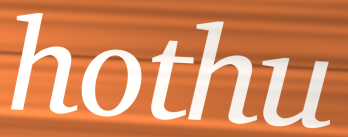
hothu